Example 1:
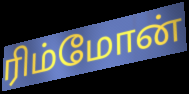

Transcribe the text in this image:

ரிம்மோன்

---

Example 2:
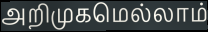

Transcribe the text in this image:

அறிமுகமெல்லாம்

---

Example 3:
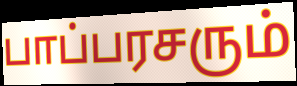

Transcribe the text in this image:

பாப்பரசரும்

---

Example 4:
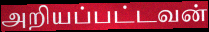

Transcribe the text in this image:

அறியப்பட்டவன்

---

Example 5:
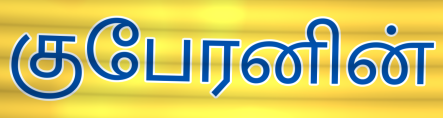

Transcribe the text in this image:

குபேரனின்